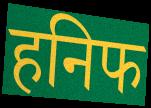
हनिफ